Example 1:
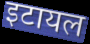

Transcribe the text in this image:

इटायल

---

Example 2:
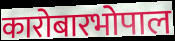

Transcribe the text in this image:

कारोबारभोपाल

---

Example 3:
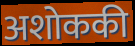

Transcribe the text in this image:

अशोककी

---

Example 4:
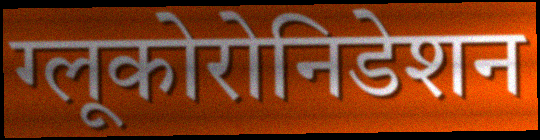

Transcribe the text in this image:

ग्लूकोरोनिडेशन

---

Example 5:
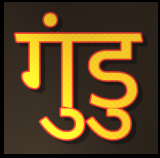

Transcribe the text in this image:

गुंडु